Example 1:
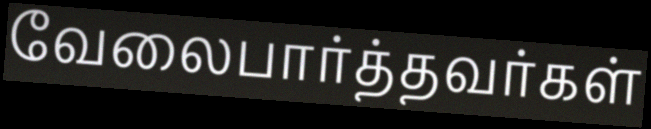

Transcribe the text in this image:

வேலைபார்த்தவர்கள்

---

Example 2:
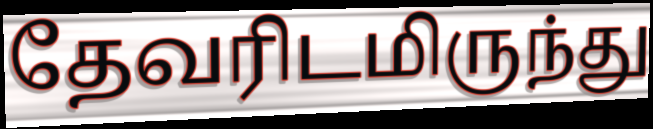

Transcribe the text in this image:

தேவரிடமிருந்து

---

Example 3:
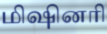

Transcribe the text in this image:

மிஷினரி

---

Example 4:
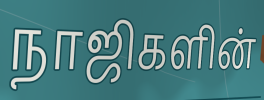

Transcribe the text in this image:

நாஜிகளின்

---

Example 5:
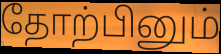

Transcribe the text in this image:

தோற்பினும்